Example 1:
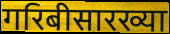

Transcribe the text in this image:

गरिबीसारख्या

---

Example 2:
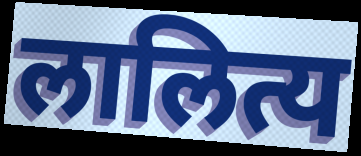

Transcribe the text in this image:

लालित्य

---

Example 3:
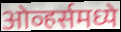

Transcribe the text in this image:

ओव्हर्समध्ये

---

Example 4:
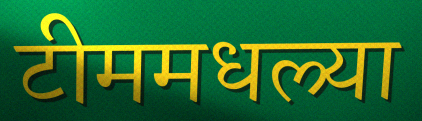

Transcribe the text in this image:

टीममधल्या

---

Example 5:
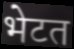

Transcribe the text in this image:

भेटत